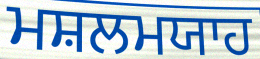
ਮਸ਼ਲਮਯਾਹ